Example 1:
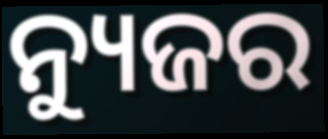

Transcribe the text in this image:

ନ୍ୟୁଜର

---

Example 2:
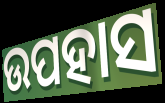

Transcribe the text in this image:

ଉପହାସ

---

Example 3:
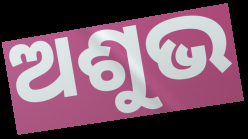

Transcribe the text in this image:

ଅଶୁଭ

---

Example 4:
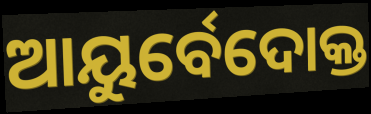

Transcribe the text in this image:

ଆୟୁର୍ବେଦୋକ୍ତ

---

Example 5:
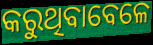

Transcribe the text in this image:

କରୁଥିବାବେଳେ